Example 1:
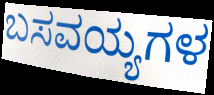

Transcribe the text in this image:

ಬಸವಯ್ಯಗಳ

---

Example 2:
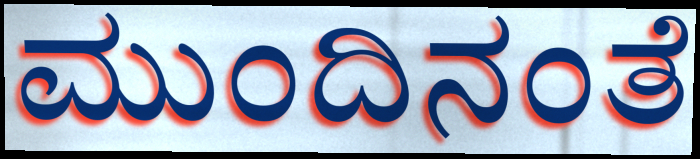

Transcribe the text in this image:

ಮುಂದಿನಂತೆ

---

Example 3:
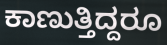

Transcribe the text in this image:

ಕಾಣುತ್ತಿದ್ದರೂ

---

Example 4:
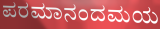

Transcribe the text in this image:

ಪರಮಾನಂದಮಯ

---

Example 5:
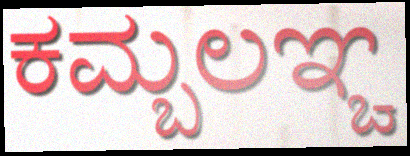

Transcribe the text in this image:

ಕಮ್ಬಲಞ್ಚ